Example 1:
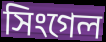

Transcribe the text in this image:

সিংগেল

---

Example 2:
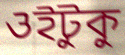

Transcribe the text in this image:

ওইটুকু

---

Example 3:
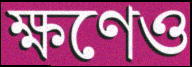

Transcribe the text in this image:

ক্ষণেও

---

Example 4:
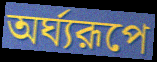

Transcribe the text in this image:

অর্ঘ্যরূপে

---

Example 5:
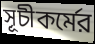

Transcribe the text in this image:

সূচীকর্মের